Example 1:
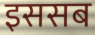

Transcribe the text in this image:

इससब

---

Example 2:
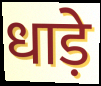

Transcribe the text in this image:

धाड़े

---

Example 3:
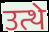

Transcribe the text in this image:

उत्थे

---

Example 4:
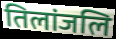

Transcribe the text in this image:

तिलांजलि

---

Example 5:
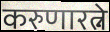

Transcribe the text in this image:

करुणारत्ने